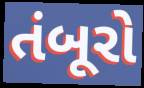
તંબૂરો